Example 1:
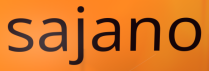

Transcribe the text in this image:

sajano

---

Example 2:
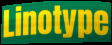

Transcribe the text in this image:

Linotype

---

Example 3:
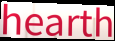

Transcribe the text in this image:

hearth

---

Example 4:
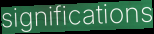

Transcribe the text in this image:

significations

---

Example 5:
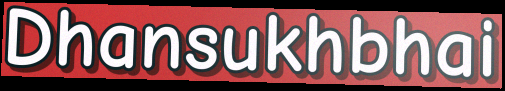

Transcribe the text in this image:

Dhansukhbhai